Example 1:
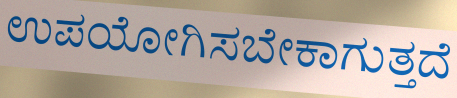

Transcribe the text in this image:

ಉಪಯೋಗಿಸಬೇಕಾಗುತ್ತದೆ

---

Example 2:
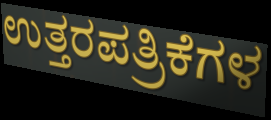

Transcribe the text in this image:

ಉತ್ತರಪತ್ರಿಕೆಗಳ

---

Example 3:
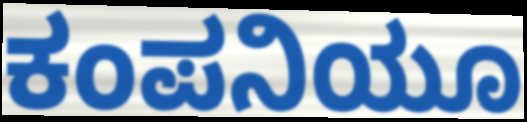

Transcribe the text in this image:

ಕಂಪನಿಯೂ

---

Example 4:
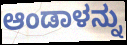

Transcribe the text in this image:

ಆಂಡಾಳನ್ನು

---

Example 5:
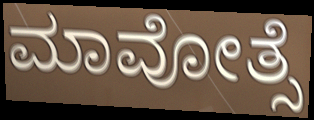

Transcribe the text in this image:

ಮಾವೋತ್ಸೆ